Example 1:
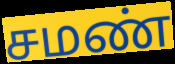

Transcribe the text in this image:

சமண்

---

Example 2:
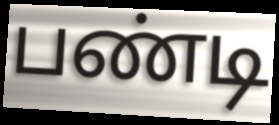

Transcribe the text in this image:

பண்டி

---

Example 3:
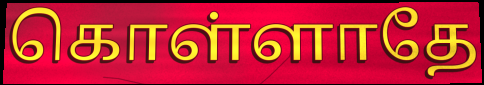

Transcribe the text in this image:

கொள்ளாதே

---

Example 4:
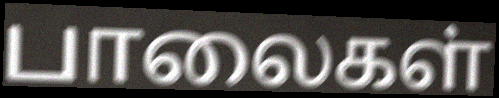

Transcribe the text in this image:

பாலைகள்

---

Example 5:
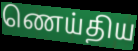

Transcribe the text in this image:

ணெய்திய